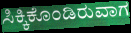
ಸಿಕ್ಕಿಕೊಂಡಿರುವಾಗ